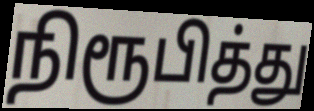
நிரூபித்து